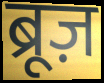
ब्रूज़